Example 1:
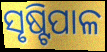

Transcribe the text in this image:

ସୃଷ୍ଟିପାଳ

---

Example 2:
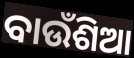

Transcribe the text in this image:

ବାଉଁଶିଆ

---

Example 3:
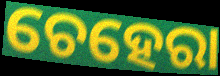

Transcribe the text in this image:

ଚେହେରା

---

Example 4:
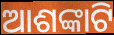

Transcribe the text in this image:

ଆଶଙ୍କାଟି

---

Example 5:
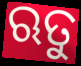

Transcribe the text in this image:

ଋତୁ